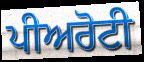
ਪੀਅਰੋਟੀ